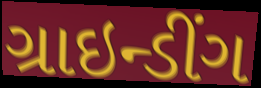
ગ્રાઇન્ડીંગ